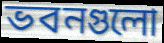
ভবনগুলো